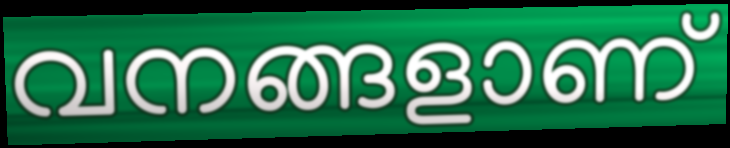
വനങ്ങളാണ്